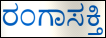
ರಂಗಾಸಕ್ತಿ